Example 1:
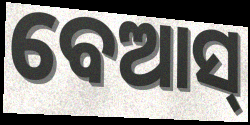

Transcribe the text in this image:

ବେଆସ୍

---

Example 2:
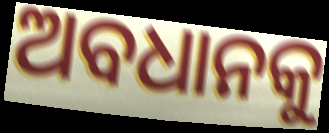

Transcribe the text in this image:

ଅବଧାନକୁ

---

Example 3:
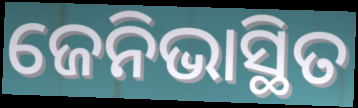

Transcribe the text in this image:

ଜେନିଭାସ୍ଥିତ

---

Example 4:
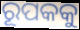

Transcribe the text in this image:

ରୂପକକୁ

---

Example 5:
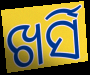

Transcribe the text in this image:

ଖର୍ସି